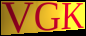
VGK